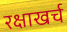
रक्षाखर्च